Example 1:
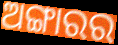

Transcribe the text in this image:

ଅଙ୍ଗାରର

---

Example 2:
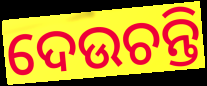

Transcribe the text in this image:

ଦେଉଚନ୍ତି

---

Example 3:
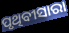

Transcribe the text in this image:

ପୃଥିବୀସାରା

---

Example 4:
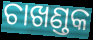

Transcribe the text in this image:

ଚାଖଣ୍ଡକ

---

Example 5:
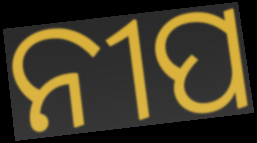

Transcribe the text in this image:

ନୀପ